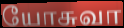
யோசுவா